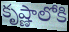
కృష్ణాలోకి